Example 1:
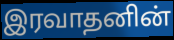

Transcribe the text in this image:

இரவாதனின்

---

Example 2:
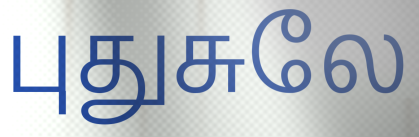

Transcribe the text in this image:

புதுசுலே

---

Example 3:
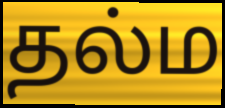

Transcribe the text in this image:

தல்ம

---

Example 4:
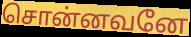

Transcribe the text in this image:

சொன்னவனே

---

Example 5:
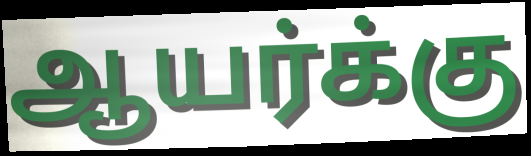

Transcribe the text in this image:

ஆயர்க்கு